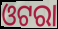
ଓଟରା